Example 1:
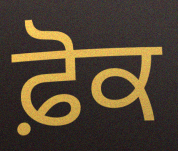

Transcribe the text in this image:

ਫ਼ੋਕ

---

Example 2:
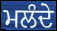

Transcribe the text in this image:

ਮਲੰਦੇ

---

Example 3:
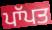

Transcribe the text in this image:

ਪਾੱਪਤ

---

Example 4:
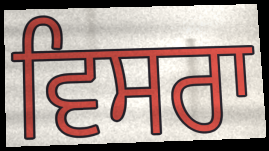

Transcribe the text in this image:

ਵਿਸਰਾ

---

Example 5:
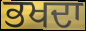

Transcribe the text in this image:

ਭਖਦਾ